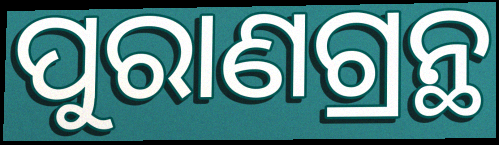
ପୁରାଣଗ୍ରନ୍ଥ